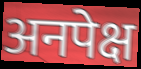
अनपेक्ष